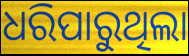
ଧରିପାରୁଥିଲା